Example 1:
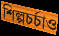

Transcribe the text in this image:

শিল্পচর্চাও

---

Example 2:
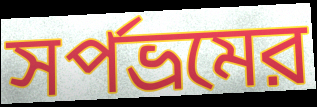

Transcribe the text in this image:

সর্পভ্রমের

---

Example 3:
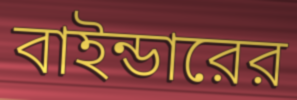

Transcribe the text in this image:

বাইন্ডারের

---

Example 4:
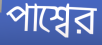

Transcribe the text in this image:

পাশ্বের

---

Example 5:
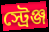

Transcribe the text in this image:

স্ট্রেঞ্জ